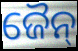
ଜୈନ୍